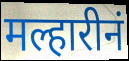
मल्हारीनं